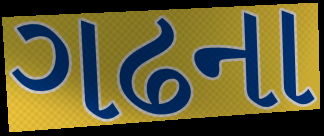
ગઢના